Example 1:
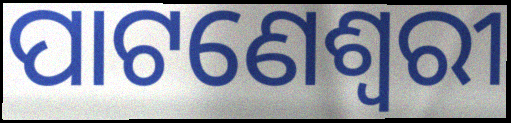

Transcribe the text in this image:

ପାଟଣେଶ୍ୱରୀ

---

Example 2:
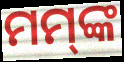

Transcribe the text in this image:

ମମ୍‌ଙ୍କ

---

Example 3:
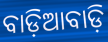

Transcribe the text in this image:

ବାଡ଼ିଆବାଡ଼ି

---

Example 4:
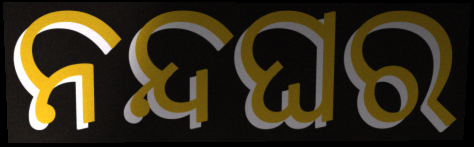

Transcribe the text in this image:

ନନ୍ଦଘର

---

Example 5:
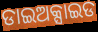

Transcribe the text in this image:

ଡାଇଅକ୍ସାଇଡ